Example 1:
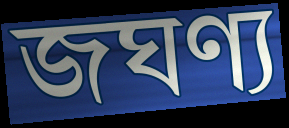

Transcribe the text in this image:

জঘণ্য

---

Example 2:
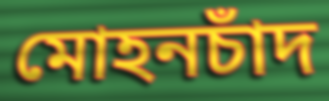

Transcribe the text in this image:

মোহনচাঁদ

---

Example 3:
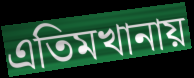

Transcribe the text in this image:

এতিমখানায়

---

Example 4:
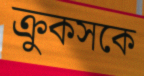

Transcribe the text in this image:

ক্রুকসকে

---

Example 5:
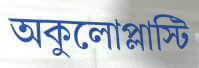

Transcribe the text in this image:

অকুলোপ্লাস্টি